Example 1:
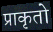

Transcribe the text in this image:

प्राकृतो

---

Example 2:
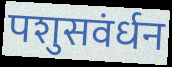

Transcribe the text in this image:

पशुसवंर्धन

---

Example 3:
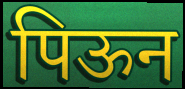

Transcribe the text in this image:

पिऊन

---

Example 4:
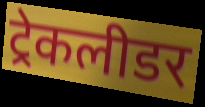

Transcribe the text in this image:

ट्रेकलीडर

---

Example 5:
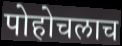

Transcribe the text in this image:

पोहोचलाच